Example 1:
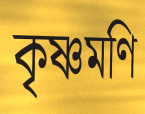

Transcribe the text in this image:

কৃষ্ণমণি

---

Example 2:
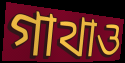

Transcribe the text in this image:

গাথাও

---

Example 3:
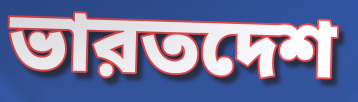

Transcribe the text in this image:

ভারতদেশ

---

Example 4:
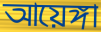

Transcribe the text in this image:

আয়েঙ্গা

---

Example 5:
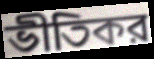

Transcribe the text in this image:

ভীতিকর